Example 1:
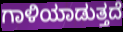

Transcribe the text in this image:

ಗಾಳಿಯಾಡುತ್ತದೆ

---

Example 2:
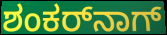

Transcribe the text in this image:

ಶಂಕರ್‌ನಾಗ್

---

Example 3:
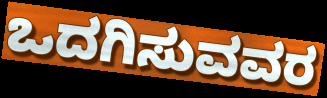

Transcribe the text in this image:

ಒದಗಿಸುವವರ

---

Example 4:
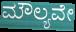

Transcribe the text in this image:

ಮೌಲ್ಯವೇ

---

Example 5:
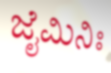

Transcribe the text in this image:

ಜೈಮಿನಿಃ